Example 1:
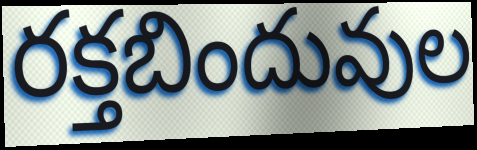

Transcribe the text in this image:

రక్తబిందువుల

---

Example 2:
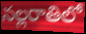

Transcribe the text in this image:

నల్లరాతిలో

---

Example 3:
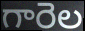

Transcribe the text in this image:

గారెల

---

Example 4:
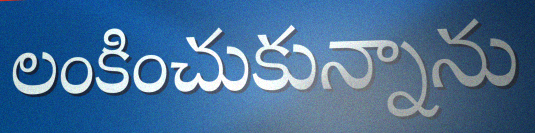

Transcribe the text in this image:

లంకించుకున్నాను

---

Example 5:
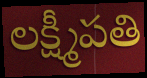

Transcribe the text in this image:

లక్ష్మీపతి